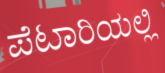
ಪೆಟಾರಿಯಲ್ಲಿ